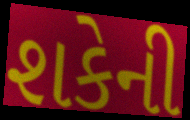
શકેની